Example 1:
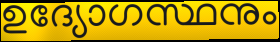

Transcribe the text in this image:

ഉദ്യോഗസ്ഥനും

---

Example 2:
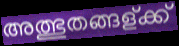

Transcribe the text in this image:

അത്ഭുതങ്ങള്ക്ക്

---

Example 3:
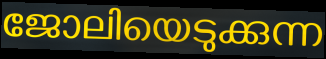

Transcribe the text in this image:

ജോലിയെടുക്കുന്ന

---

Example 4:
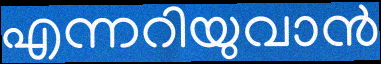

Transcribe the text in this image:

എന്നറിയുവാൻ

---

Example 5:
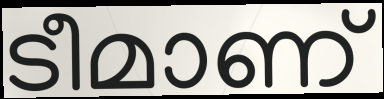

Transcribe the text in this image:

ടീമാണ്